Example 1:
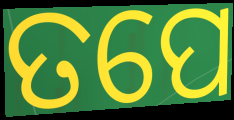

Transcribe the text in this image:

ତପେ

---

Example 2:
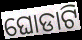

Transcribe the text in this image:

ଘୋଡାଟି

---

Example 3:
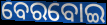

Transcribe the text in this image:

ବେରବୋଇ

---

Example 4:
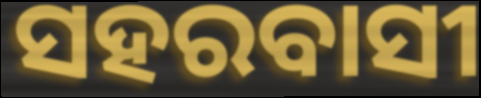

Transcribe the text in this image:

ସହରବାସୀ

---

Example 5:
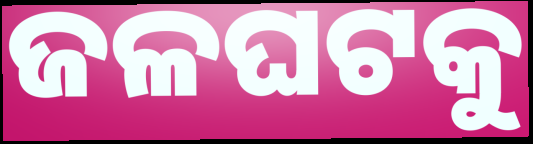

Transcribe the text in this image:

ଜଳଘଟକୁ